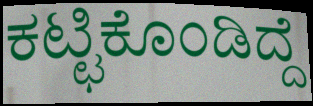
ಕಟ್ಟಿಕೊಂಡಿದ್ದೆ